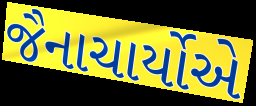
જૈનાચાર્યોએ